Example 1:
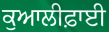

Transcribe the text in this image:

ਕੁਆਲੀਫ਼ਾਈ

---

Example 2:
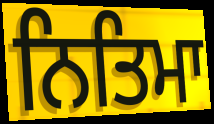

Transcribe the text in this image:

ਨਿਤਿਮਾ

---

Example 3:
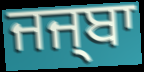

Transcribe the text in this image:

ਜਜ੍ਬਾ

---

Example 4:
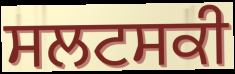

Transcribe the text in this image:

ਸਲਟਸਕੀ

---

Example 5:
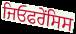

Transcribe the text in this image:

ਜਿਓਫਰੇਂਸਿਸ